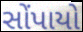
સોંપાયો